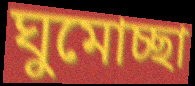
ঘুমোচ্ছা